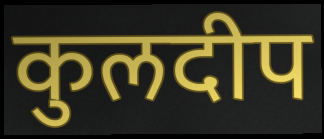
कुलदीप